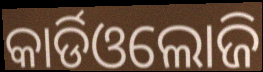
କାର୍ଡିଓଲୋଜି